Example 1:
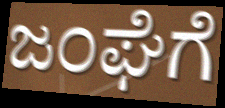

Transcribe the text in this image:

ಜಂಘೆಗೆ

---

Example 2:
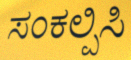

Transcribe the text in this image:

ಸಂಕಲ್ಪಿಸಿ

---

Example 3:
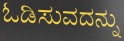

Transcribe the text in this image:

ಓಡಿಸುವದನ್ನು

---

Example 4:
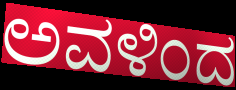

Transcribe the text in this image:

ಅವಳಿಂದ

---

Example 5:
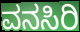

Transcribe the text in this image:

ವನಸಿರಿ